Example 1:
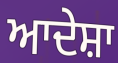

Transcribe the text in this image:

ਆਦੇਸ਼ਾ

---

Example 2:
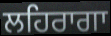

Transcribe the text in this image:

ਲਹਿਰਾਗਾ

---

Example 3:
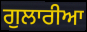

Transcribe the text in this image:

ਗੁਲਾਰੀਆ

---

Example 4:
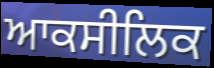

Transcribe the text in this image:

ਆਕਸੀਲਿਕ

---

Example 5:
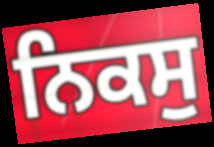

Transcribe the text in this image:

ਨਿਕਸੁ